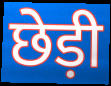
छेड़ी